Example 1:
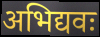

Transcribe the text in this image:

अभिद्यवः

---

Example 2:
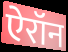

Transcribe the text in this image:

ऐरॉन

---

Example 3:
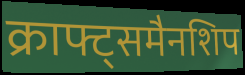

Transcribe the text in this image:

क्राफ्ट्समैनशिप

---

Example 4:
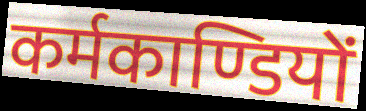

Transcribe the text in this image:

कर्मकाण्डियों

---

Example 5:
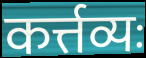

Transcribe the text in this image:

कर्त्तव्यः